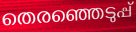
തെരഞ്ഞെടുപ്പ്